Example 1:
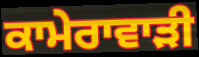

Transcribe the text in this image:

ਕਾਮੇਰਾਵਾੜੀ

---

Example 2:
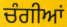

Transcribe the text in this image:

ਚੰਗੀਆਂ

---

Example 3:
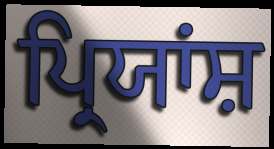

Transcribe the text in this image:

ਪ੍ਰਿਯਾਂਸ਼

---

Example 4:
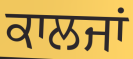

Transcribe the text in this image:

ਕਾਲਜਾਂ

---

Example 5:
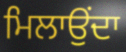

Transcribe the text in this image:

ਮਿਲਾਉਂਦਾ